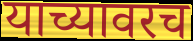
याच्यावरच